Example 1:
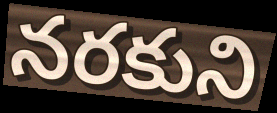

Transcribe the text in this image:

నరకుని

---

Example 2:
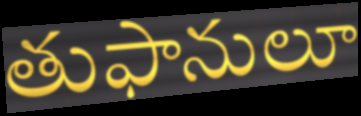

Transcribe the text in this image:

తుఫానులూ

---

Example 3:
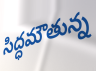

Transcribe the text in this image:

సిద్ధమౌతున్న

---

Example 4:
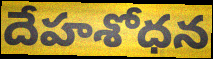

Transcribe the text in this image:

దేహశోధన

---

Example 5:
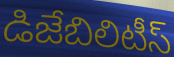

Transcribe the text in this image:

డిజేబిలిటీస్